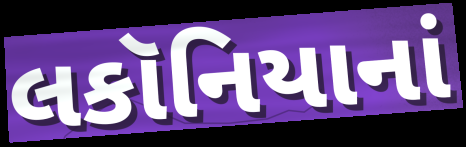
લકૉનિયાનાં